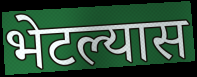
भेटल्यास